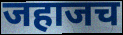
जहाजच